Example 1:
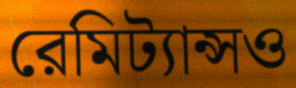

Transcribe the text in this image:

রেমিট্যান্সও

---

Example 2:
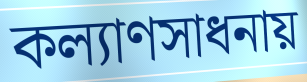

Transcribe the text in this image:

কল্যাণসাধনায়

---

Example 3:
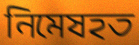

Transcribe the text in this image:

নিমেষহত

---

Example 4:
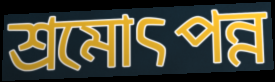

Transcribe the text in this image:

শ্রমোৎপন্ন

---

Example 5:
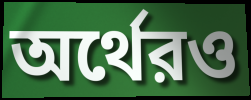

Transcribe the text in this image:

অর্থেরও